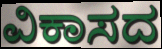
ವಿಕಾಸದ